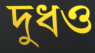
দুধও